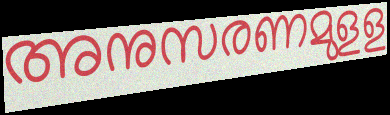
അനുസരണമുളള